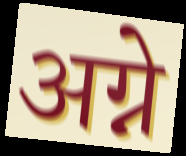
अग्ने